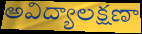
అవిద్యాలక్షణా